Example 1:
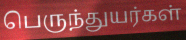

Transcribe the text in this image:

பெருந்துயர்கள்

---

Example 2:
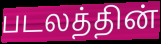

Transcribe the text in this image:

படலத்தின்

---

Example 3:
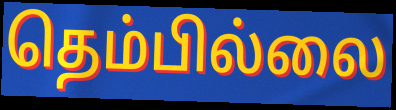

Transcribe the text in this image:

தெம்பில்லை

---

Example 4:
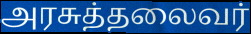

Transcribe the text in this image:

அரசுத்தலைவர்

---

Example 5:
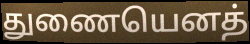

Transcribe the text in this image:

துணையெனத்